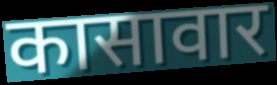
कासावार